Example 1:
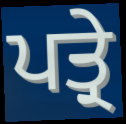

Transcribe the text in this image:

ਪਤ੍ਰੇ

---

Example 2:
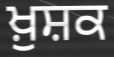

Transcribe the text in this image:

ਖ਼ੁਸ਼ਕ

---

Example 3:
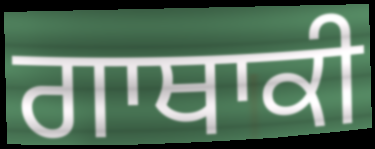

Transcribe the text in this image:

ਗਾਥਾਕੀ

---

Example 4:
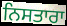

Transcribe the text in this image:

ਨਿਸਤਾਰਾ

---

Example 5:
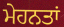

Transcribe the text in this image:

ਮੇਹਨਤਾਂ